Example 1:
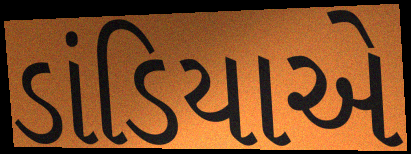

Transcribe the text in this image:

ડાંડિયાએ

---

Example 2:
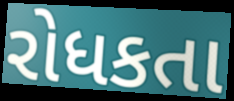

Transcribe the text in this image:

રોધકતા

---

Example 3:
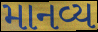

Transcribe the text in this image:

માનવ્ય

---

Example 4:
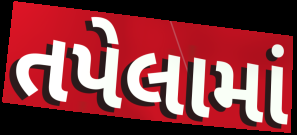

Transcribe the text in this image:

તપેલામાં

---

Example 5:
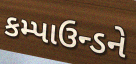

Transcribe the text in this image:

કમ્પાઉન્ડને